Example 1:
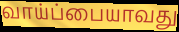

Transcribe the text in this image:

வாய்ப்பையாவது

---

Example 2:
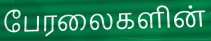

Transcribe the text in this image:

பேரலைகளின்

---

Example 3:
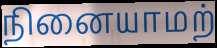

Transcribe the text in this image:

நினையாமற்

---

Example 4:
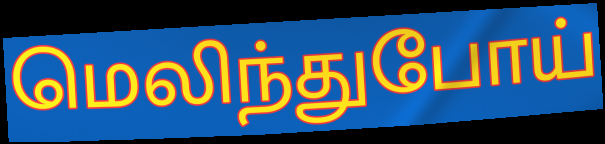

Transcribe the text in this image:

மெலிந்துபோய்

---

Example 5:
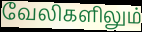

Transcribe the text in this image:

வேலிகளிலும்